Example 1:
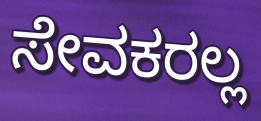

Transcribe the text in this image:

ಸೇವಕರಲ್ಲ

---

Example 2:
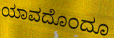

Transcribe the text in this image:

ಯಾವದೊಂದೂ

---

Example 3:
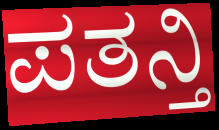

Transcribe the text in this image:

ಪತನ್ತಿ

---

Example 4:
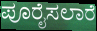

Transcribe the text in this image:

ಪೂರೈಸಲಾರೆ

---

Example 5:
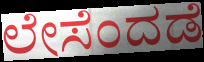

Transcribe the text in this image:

ಲೇಸೆಂದಡೆ